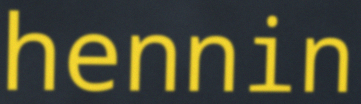
hennin